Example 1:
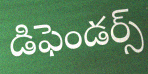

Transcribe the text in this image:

డిఫెండర్స్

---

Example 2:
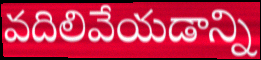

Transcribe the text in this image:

వదిలివేయడాన్ని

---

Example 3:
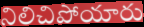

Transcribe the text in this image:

నిలిచిపోయారు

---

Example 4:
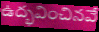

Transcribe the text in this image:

ఉద్భవించినవే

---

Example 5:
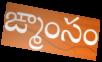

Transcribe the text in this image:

ఙ్మాంసం